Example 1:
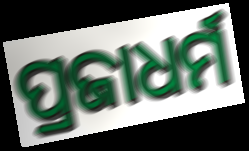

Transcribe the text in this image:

ପ୍ରଜାଧର୍ମ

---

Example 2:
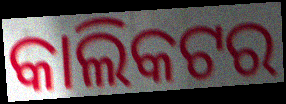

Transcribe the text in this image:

କାଲିକଟର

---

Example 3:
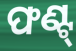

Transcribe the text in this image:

ଫଣ୍ଟ୍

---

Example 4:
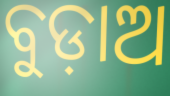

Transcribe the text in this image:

ବୁଡ଼ାଅ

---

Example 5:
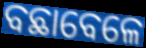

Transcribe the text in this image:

ବଛାବେଳେ